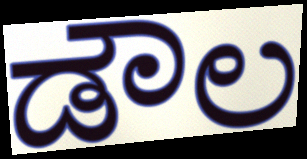
ಡೌಲ